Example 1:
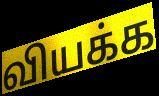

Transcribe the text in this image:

வியக்க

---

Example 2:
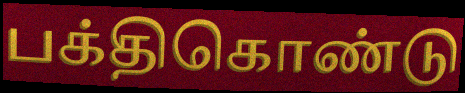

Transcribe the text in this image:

பக்திகொண்டு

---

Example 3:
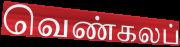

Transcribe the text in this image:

வெண்கலப்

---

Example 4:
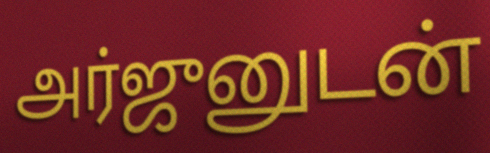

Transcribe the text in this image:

அர்ஜுனுடன்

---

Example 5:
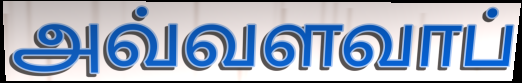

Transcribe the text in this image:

அவ்வளவாப்